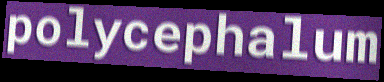
polycephalum